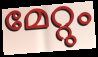
മേറ്റും